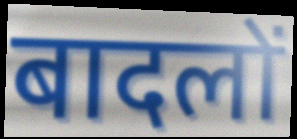
बादलों